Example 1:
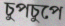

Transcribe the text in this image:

চুপচুপে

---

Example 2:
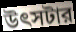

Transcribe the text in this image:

উৎসটার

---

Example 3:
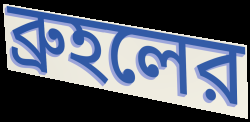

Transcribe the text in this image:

ব্রুহলের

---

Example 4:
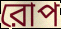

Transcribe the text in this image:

রোপ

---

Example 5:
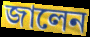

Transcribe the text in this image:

জালেন